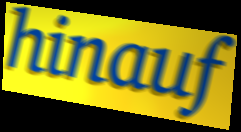
hinauf